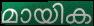
മായിക